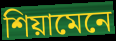
শিয়ামেনে